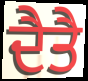
ਦੈਤੈ